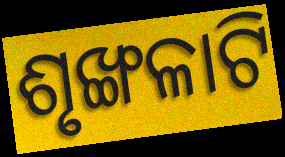
ଶୃଙ୍ଖଳାଟି